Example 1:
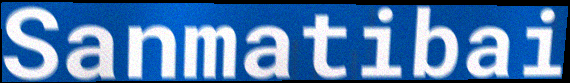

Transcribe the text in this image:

Sanmatibai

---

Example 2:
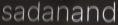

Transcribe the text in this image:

sadanand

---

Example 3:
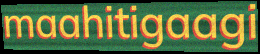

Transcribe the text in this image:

maahitigaagi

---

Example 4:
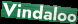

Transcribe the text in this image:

Vindaloo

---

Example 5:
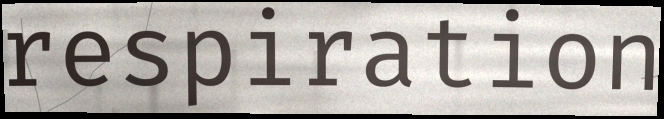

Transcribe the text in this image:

respiration